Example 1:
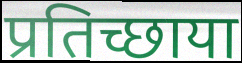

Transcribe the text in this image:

प्रतिच्छाया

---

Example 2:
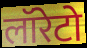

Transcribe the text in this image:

लॉरेटो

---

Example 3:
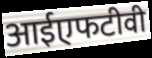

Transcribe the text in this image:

आईएफटीवी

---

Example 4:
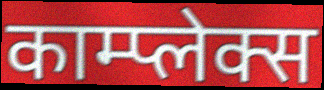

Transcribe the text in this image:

काम्प्लेक्स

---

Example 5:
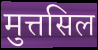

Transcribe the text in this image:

मुत्तसिल